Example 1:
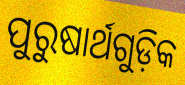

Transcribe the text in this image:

ପୁରୁଷାର୍ଥଗୁଡ଼ିକ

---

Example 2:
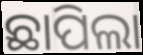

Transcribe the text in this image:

ଛାପିଲା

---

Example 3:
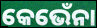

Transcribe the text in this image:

କେଭେଁନା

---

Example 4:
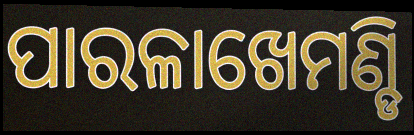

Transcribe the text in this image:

ପାରଳାଖେମଣ୍ଡି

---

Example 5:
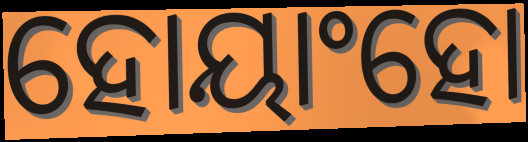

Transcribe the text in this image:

ହୋୟାଂହୋ